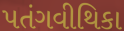
પતંગવીથિકા